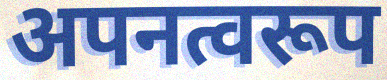
अपनत्वरूप